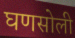
घणसोली